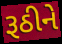
રૂઠીને